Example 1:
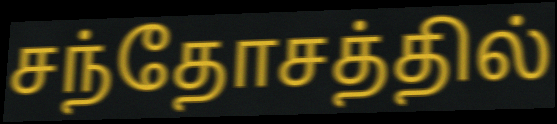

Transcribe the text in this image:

சந்தோசத்தில்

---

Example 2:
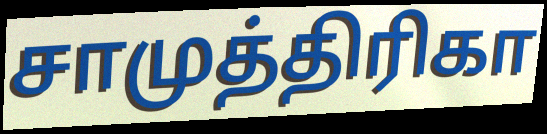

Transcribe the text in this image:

சாமுத்திரிகா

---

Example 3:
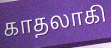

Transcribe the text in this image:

காதலாகி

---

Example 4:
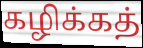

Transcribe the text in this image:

கழிக்கத்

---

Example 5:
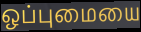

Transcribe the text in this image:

ஒப்புமையை